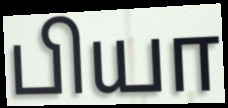
பியா